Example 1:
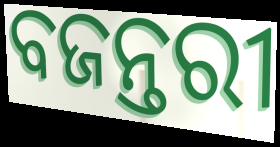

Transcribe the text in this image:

ବଜନ୍ତରୀ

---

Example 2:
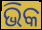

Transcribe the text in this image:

ଭିକ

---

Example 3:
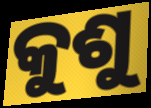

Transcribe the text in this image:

କୁଶୁ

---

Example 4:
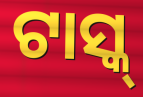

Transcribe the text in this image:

ଟାସ୍କ୍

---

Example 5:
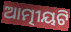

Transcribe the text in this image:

ଆତ୍ମୀୟଟି